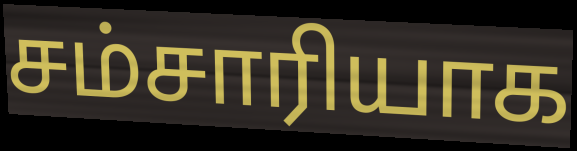
சம்சாரியாக